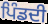
ਪਿੰਡਦੀ